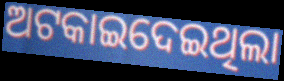
ଅଟକାଇଦେଇଥିଲା